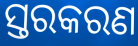
ସ୍ତରକରଣ